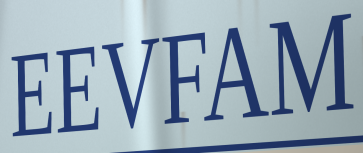
EEVFAM